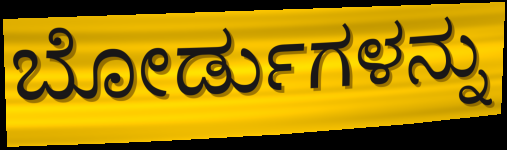
ಬೋರ್ಡುಗಳನ್ನು